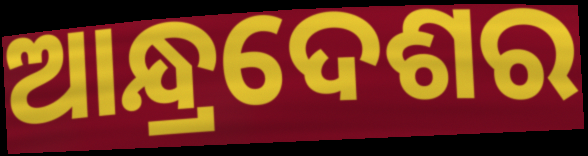
ଆନ୍ଧ୍ରଦେଶର